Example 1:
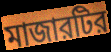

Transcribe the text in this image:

মাজারটির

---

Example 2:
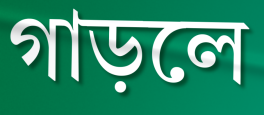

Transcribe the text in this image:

গাড়লে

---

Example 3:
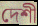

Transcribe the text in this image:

দেশী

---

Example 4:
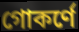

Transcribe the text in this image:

গোকর্ণে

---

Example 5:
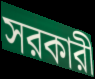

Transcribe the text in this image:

সরকারী